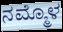
ನಮ್ಮೊಳ